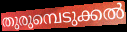
തുരുമ്പെടുക്കൽ